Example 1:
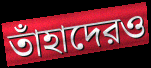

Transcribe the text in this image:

তাঁহাদেরও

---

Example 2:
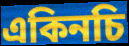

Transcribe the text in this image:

একিনচি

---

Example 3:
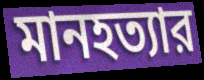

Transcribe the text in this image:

মানহত্যার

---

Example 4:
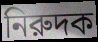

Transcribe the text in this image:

নিরুদক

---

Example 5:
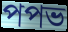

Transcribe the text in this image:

পপভ